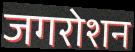
जगरोशन